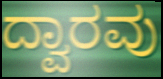
ದ್ವಾರವು